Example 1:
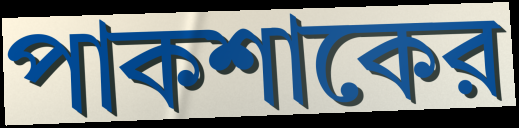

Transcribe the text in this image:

পাকশাকের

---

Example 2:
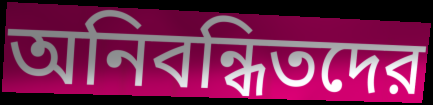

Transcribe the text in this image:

অনিবন্ধিতদের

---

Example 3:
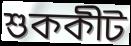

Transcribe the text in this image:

শুককীট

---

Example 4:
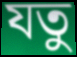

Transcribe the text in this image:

যতু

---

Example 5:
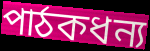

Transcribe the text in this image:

পাঠকধন্য